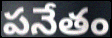
పనేతం